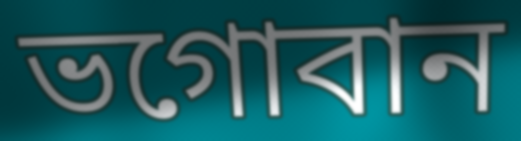
ভগোবান